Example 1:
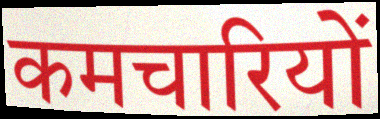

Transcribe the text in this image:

कमचारियों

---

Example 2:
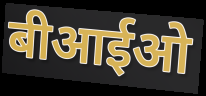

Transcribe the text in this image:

बीआईओ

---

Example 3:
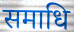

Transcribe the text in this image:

समाधि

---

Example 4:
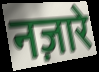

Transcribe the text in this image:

नज़ारे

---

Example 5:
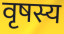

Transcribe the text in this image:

वृषस्य